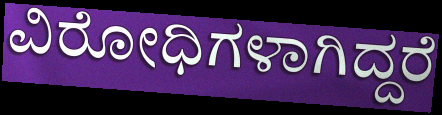
ವಿರೋಧಿಗಳಾಗಿದ್ದರೆ